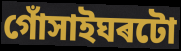
গোঁসাইঘৰটো